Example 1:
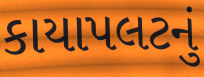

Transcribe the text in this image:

કાયાપલટનું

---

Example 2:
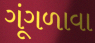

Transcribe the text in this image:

ગૂંગળાવા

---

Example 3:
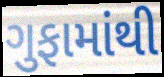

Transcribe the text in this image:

ગુફામાંથી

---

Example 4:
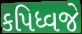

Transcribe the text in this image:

કપિધ્વજે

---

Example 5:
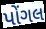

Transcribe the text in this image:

પોંગલ